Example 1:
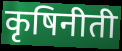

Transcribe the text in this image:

कृषिनीती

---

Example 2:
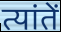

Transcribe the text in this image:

त्यांतें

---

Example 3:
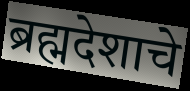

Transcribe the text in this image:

ब्रह्मदेशाचे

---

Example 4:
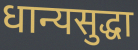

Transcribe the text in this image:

धान्यसुद्धा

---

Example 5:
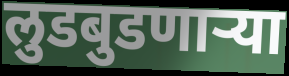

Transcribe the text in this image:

लुडबुडणाऱ्या